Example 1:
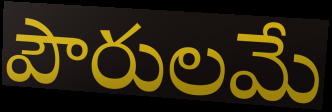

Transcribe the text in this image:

పౌరులమే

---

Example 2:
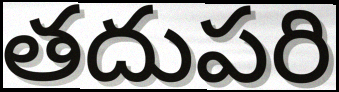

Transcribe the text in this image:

తదుపరి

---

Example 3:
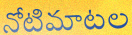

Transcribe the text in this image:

నోటిమాటల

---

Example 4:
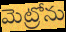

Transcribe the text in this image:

మెట్రోను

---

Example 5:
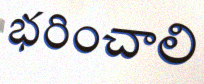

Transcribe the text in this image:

భరించాలి